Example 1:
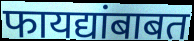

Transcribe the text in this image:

फायद्यांबाबत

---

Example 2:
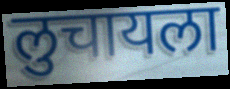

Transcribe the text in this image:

लुचायला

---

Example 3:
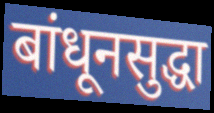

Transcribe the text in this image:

बांधूनसुद्धा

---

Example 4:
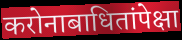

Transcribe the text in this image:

करोनाबाधितांपेक्षा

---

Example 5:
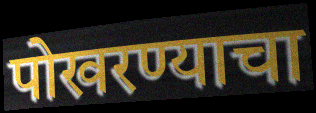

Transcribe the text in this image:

पोखरण्याचा